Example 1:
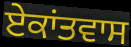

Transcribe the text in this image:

ਏਕਾਂਤਵਾਸ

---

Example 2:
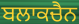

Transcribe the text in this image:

ਬਲਾਕਚੈਨ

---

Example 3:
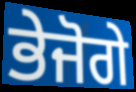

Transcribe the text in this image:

ਭੇਜੋਗੇ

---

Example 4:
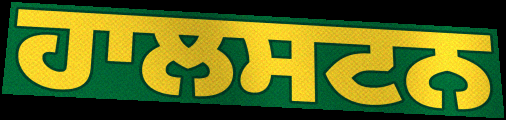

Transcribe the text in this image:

ਹਾਲਸਟਨ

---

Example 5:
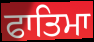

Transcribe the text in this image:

ਫਾਤਿਮਾ